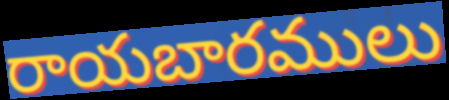
రాయబారములు